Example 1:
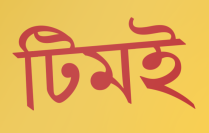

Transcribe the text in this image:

টিমই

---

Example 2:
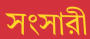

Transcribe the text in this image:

সংসারী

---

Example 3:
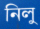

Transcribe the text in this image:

নিলু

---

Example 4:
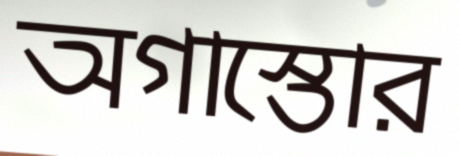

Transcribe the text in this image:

অগাস্তোর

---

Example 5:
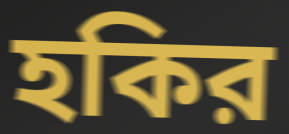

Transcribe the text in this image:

হকির